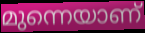
മുന്നെയാണ്